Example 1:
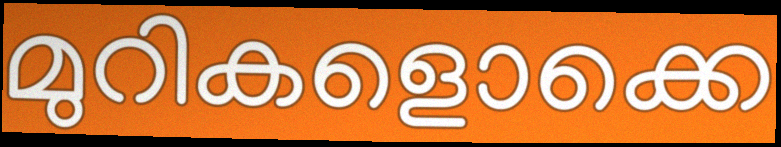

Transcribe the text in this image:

മുറികളൊക്കെ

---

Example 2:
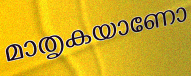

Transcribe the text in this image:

മാതൃകയാണോ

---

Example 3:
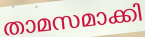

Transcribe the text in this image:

താമസമാക്കി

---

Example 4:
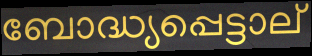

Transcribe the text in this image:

ബോദ്ധ്യപ്പെട്ടാല്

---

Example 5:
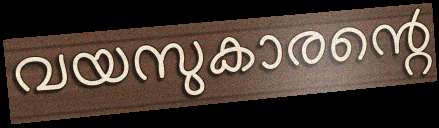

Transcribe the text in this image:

വയസുകാരന്റെ